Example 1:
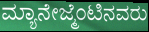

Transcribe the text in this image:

ಮ್ಯಾನೇಜ್ಮೆಂಟಿನವರು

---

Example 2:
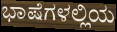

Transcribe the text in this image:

ಭಾಷೆಗಳಲ್ಲಿಯ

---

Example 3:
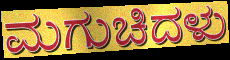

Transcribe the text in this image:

ಮಗುಚಿದಳು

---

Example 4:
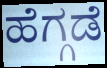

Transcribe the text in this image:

ಹೆಗ್ಗಡೆ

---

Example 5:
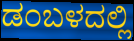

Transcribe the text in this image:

ಡಂಬಳದಲ್ಲಿ